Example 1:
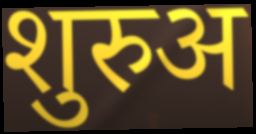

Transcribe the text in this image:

शुरुअ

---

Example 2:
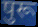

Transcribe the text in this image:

षुरू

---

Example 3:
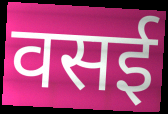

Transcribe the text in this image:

वसई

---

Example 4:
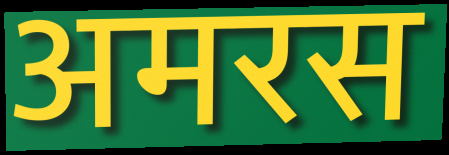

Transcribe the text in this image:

अमरस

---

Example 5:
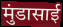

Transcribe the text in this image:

मुंडासाई